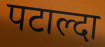
पटाल्दा